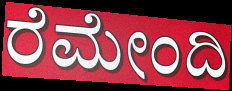
ರೆಮೇಂದಿ